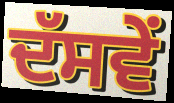
ਦੱਸਵੇਂ